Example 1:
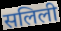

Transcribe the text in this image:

सलिली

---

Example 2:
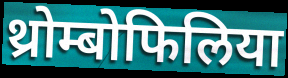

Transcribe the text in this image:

थ्रोम्बोफिलिया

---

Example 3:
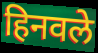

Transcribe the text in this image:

हिनवले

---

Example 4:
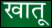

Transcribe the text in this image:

खातू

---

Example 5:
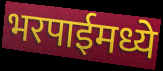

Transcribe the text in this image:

भरपाईमध्ये